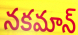
నకమాన్